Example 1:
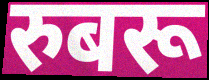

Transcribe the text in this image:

रुबरू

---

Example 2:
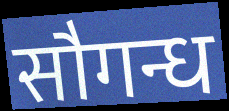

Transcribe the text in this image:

सौगन्ध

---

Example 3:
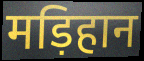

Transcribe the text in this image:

मड़िहान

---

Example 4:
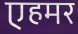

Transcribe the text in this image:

एहमर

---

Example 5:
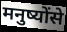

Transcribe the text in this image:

मनुष्योंसे